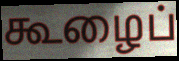
கூழைப்